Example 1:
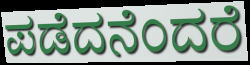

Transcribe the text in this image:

ಪಡೆದನೆಂದರೆ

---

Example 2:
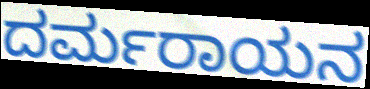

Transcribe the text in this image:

ದರ್ಮರಾಯನ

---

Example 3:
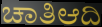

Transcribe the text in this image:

ಚಾತಿಆದಿ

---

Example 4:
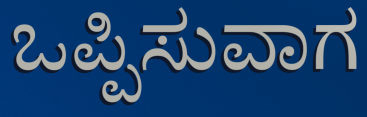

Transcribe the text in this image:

ಒಪ್ಪಿಸುವಾಗ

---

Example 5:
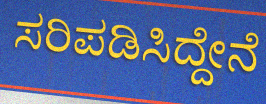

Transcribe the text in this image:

ಸರಿಪಡಿಸಿದ್ದೇನೆ